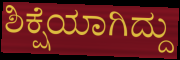
ಶಿಕ್ಷೆಯಾಗಿದ್ದು